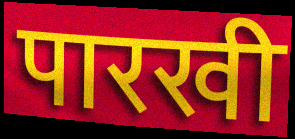
पारखी